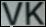
VK